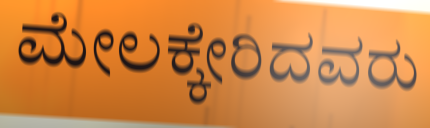
ಮೇಲಕ್ಕೇರಿದವರು